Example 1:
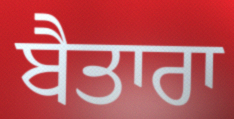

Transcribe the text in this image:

ਬੈਤਾਰਾ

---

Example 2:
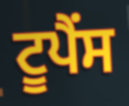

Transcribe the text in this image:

ਟੂਪੈਂਸ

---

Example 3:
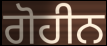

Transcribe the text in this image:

ਗੋਹੀਨ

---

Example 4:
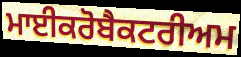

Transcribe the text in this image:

ਮਾਈਕਰੋਬੈਕਟਰੀਅਮ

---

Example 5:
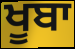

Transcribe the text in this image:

ਖੂਬਾ